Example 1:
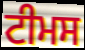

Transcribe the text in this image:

ਟੀਮਸ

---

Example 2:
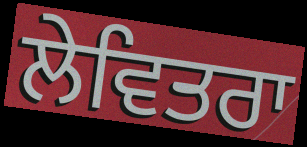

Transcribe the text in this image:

ਲੇਵਿਤਰਾ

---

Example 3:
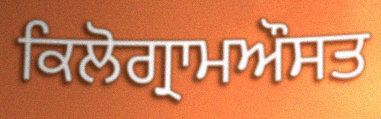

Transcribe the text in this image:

ਕਿਲੋਗ੍ਰਾਮਔਸਤ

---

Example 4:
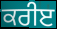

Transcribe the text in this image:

ਕਰੀੲ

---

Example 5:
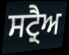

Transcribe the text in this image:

ਸਟ੍ਰੈਅ